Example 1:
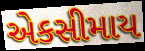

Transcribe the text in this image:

એકસીમાય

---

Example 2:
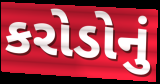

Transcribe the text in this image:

કરોડોનું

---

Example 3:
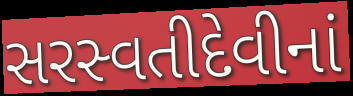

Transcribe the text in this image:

સરસ્વતીદેવીનાં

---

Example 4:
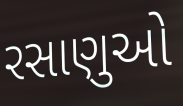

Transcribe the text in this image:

રસાણુઓ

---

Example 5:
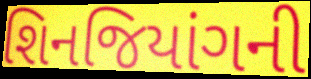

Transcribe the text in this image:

શિનજિયાંગની